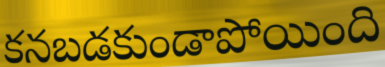
కనబడకుండాపోయింది